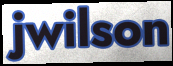
jwilson